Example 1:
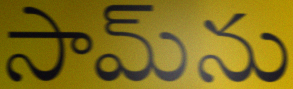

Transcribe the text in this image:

సామ్‌ను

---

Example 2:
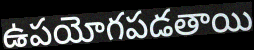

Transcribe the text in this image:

ఉపయోగపడతాయి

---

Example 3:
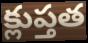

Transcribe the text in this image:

క్లుప్తత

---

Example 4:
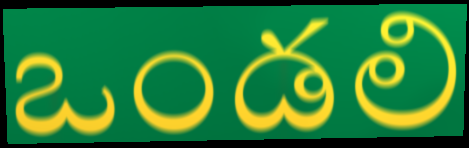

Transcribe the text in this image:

ఒండలి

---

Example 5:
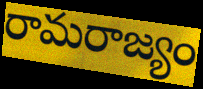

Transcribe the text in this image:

రామరాజ్యం